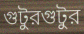
গুটুরগুটুর